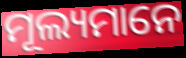
ମୂଲ୍ୟମାନେ